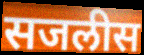
सजलीस